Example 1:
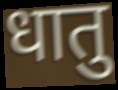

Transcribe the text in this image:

धातु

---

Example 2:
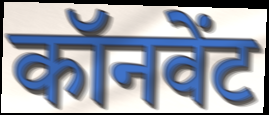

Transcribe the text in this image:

कॉनवेंट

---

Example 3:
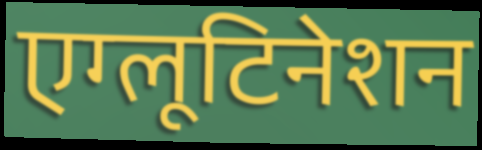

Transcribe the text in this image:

एग्लूटिनेशन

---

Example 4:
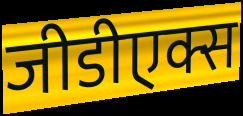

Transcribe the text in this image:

जीडीएक्स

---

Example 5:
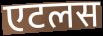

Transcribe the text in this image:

एटलस